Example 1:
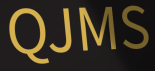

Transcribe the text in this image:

QJMS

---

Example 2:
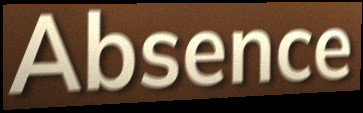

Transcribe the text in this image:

Absence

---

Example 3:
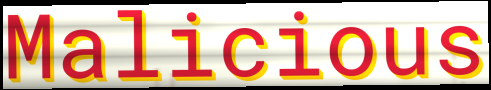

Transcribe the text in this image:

Malicious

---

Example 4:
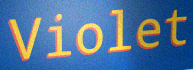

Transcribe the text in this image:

Violet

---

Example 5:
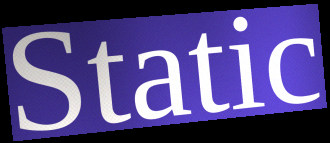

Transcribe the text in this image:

Static